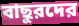
বাছুরদের